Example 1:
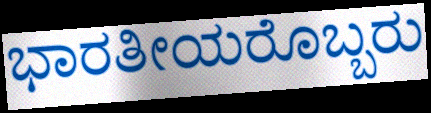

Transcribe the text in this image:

ಭಾರತೀಯರೊಬ್ಬರು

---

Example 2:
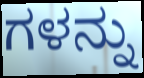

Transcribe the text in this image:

ಗಳನ್ನು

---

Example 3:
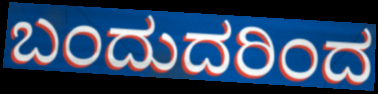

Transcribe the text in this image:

ಬಂದುದರಿಂದ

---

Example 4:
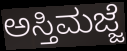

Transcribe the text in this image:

ಅಸ್ತಿಮಜ್ಜೆ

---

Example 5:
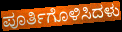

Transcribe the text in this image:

ಪೂರ್ತಿಗೊಳಿಸಿದಳು